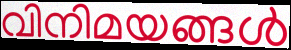
വിനിമയങ്ങൾ